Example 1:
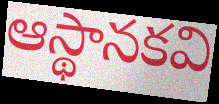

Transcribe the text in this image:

ఆస్థానకవి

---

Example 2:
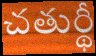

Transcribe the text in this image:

చతుర్థీ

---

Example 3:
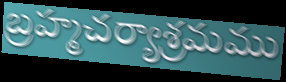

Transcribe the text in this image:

బ్రహ్మచర్యాశ్రమము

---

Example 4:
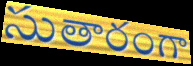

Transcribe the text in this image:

సుతారంగా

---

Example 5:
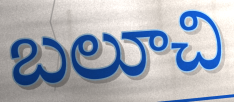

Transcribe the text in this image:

బలూచి